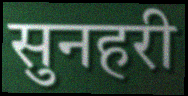
सुनहरी